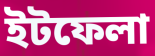
ইটফেলা